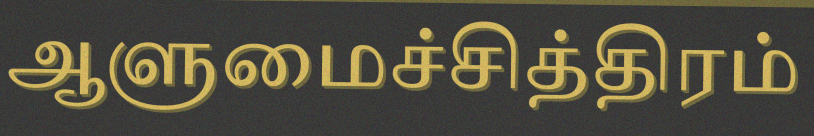
ஆளுமைச்சித்திரம்